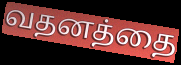
வதனத்தை